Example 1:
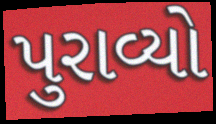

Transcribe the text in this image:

પુરાવ્યો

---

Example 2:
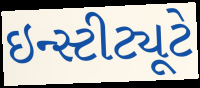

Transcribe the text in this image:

ઇન્સ્ટીટ્યૂટે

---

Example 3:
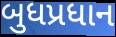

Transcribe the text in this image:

બુધપ્રધાન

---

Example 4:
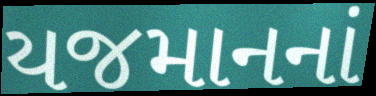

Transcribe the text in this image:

યજમાનનાં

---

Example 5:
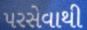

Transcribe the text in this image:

પરસેવાથી